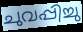
ചുവപ്പിച്ചു